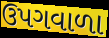
ઉપગવાળા